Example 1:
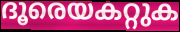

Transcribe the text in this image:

ദൂരെയകറ്റുക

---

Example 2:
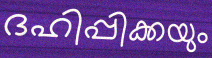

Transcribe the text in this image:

ദഹിപ്പിക്കയും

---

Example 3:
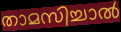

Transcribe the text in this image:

താമസിച്ചാൽ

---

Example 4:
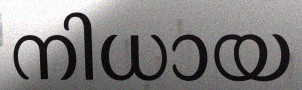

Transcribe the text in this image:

നിധായ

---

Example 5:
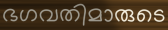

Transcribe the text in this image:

ഭഗവതിമാരുടെ